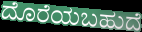
ದೊರೆಯಬಹುದೆ